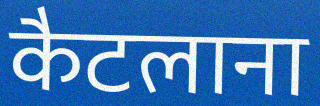
कैटलाना